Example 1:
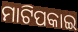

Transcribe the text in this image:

ମାଟିପକାଇ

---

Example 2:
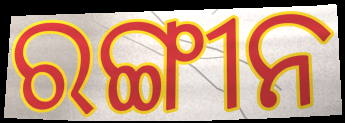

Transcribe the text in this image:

ରଙ୍ଗୀନ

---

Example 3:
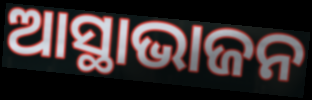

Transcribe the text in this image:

ଆସ୍ଥାଭାଜନ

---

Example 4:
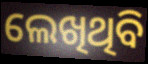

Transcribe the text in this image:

ଲେଖିଥିବି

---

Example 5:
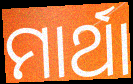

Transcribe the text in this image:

ମାର୍ଥା